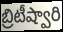
బ్రిటీష్వారి